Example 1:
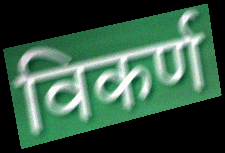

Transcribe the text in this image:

विकर्ण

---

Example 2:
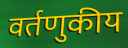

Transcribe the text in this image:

वर्तणुकीय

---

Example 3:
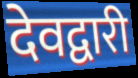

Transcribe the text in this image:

देवद्वारी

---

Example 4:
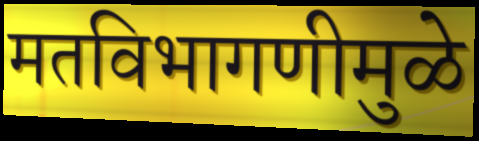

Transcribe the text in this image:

मतविभागणीमुळे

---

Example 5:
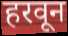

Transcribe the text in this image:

हरवून